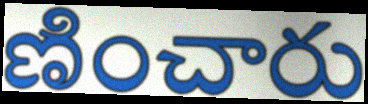
ణించారు